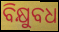
ବିକ୍ଷୁବଧ